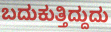
ಬದುಕುತ್ತಿದ್ದುದು